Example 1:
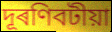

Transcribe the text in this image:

দূৰণিবটীয়া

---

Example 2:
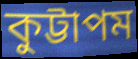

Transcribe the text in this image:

কুট্টাপম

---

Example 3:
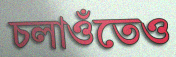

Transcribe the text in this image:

চলাওঁতেও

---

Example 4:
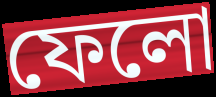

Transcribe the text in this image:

ফেলো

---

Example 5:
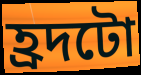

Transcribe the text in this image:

হ্ৰদটো